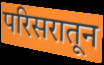
परिसरातून